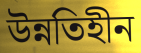
উন্নতিহীন